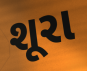
શૂરા